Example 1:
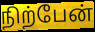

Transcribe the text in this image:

நிற்பேன்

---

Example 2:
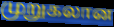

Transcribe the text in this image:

முறுகலான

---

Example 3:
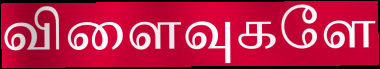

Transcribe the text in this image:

விளைவுகளே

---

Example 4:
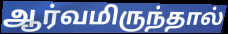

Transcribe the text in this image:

ஆர்வமிருந்தால்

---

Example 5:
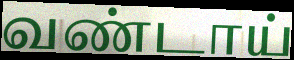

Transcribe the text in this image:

வண்டாய்